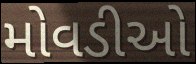
મોવડીઓ